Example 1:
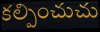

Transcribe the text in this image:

కల్పించుచు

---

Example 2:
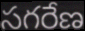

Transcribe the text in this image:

సగరేణ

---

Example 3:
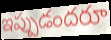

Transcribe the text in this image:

ఇప్పుడందరూ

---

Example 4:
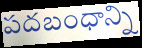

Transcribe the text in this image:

పదబంధాన్ని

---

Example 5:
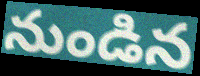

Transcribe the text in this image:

నుండిన